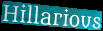
Hillarious